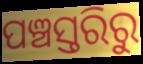
ପଞ୍ଚସ୍ତରିରୁ